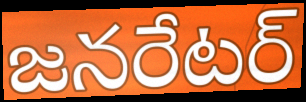
జనరేటర్